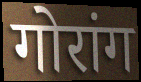
गोरांग